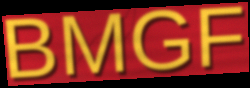
BMGF